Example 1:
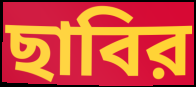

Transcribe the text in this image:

ছাবির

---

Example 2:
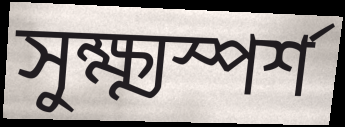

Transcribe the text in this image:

সুক্ষ্মস্পর্শ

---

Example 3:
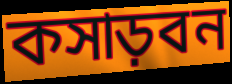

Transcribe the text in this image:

কসাড়বন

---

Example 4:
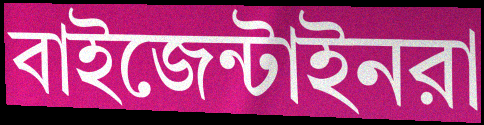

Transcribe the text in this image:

বাইজেন্টাইনরা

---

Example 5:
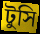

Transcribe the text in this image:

টুসি